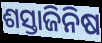
ଶସ୍ତାଜିନିଷ